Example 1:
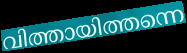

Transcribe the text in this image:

വിത്തായിത്തന്നെ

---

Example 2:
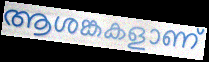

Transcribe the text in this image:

ആശങ്കകളാണ്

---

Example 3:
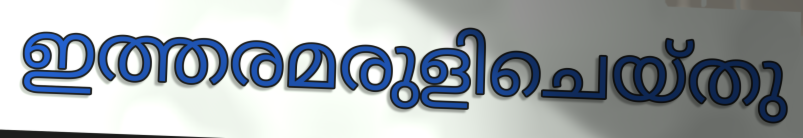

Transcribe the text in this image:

ഇത്തരമരുളിചെയ്തു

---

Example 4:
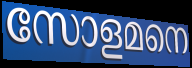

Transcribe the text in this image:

സോളമനെ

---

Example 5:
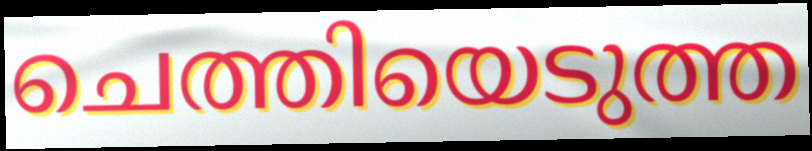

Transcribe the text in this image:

ചെത്തിയെടുത്ത